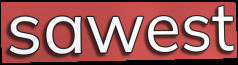
sawest